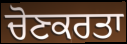
ਚੋਣਕਰਤਾ